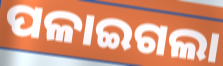
ପଳାଇଗଲା